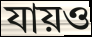
যায়ও